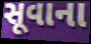
સૂવાના